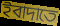
ইবাদাতে